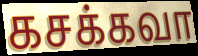
கசக்கவா